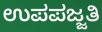
ಉಪಪಜ್ಜತಿ